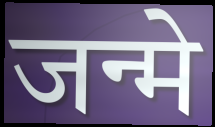
जन्मे